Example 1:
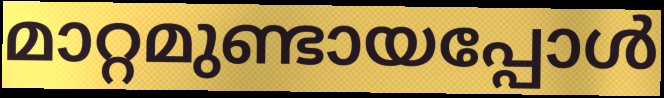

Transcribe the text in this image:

മാറ്റമുണ്ടായപ്പോൾ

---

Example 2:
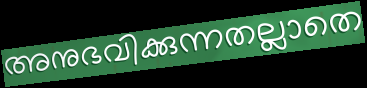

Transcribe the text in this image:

അനുഭവിക്കുന്നതല്ലാതെ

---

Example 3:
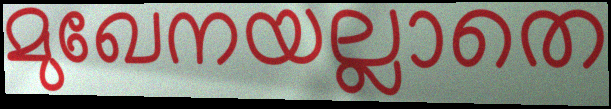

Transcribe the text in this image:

മുഖേനയല്ലാതെ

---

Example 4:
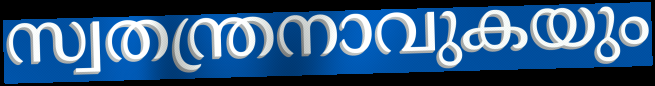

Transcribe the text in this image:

സ്വതന്ത്രനാവുകയും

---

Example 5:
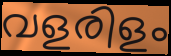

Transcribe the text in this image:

വളരിളം